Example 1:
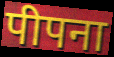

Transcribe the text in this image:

पीपना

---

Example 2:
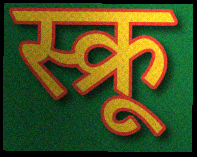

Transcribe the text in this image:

स्क्रू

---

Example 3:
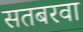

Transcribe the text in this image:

सतबरवा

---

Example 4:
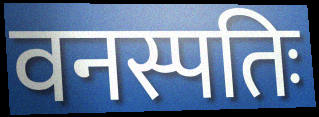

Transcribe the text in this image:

वनस्पतिः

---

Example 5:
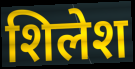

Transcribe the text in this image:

शिलेश